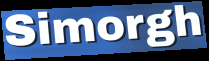
Simorgh